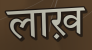
लाख़